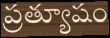
ప్రత్యూషం